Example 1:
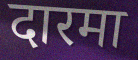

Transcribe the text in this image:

दारमा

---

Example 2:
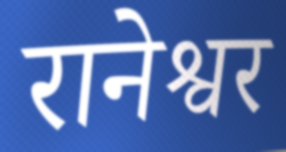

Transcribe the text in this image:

रानेश्वर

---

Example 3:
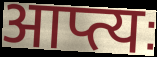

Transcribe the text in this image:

आप्त्यः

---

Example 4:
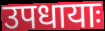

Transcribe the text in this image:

उपधायाः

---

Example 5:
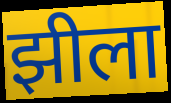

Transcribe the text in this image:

झीला